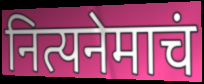
नित्यनेमाचं